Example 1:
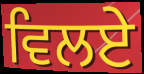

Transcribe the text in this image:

ਵਿਲਏ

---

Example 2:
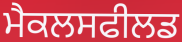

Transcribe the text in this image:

ਮੈਕਲਸਫੀਲਡ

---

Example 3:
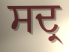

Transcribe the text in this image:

ਸਦ੍ਰ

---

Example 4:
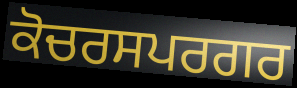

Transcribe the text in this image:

ਕੋਚਰਸਪਰਗਰ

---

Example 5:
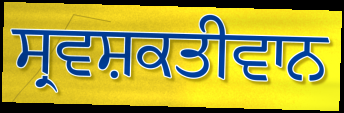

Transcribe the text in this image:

ਸ੍ਰਵਸ਼ਕਤੀਵਾਨ